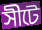
সীটে